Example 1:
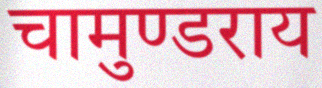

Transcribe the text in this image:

चामुण्डराय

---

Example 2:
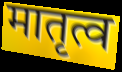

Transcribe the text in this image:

मातृत्व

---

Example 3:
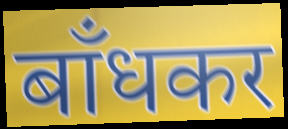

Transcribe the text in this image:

बाँधकर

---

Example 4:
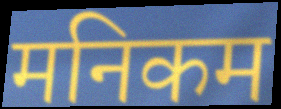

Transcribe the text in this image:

मनिकम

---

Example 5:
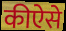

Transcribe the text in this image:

कीऐसे